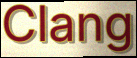
Clang